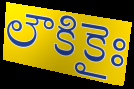
లౌకికైః